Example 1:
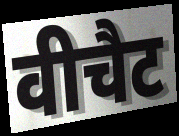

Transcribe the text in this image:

वीचैट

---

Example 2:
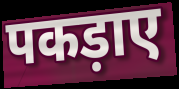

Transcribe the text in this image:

पकड़ाए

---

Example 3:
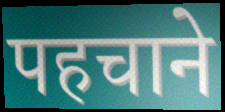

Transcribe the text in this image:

पहचाने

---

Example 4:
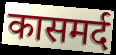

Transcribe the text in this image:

कासमर्द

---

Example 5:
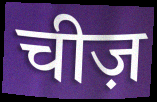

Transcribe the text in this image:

चीज़